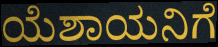
ಯೆಶಾಯನಿಗೆ